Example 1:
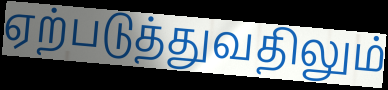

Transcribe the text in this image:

ஏற்படுத்துவதிலும்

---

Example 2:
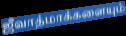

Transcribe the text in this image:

ஜீவாத்மாக்களையும்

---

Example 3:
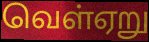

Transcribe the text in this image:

வெள்ஏறு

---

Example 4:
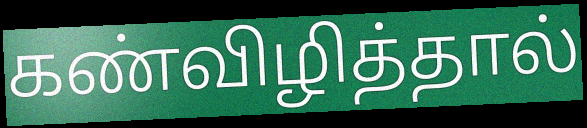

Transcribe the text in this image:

கண்விழித்தால்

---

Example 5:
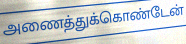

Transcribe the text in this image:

அணைத்துக்கொண்டேன்